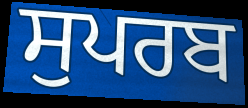
ਸੁਪਰਬ